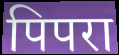
पिपरा